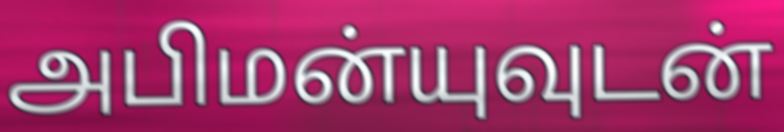
அபிமன்யுவுடன்